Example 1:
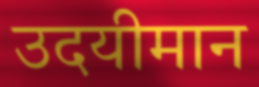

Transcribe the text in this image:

उदयीमान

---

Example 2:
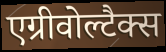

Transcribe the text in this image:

एग्रीवोल्टैक्स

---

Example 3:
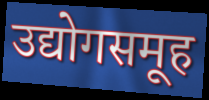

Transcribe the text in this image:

उद्योगसमूह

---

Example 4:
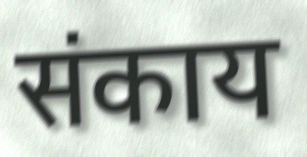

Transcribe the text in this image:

संकाय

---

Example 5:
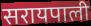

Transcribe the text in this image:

सरायपाली